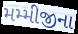
મમ્મીજીના